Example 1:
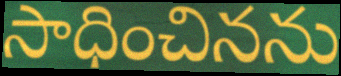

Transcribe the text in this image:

సాధించినను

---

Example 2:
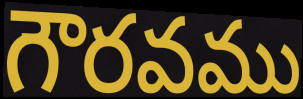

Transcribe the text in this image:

గౌరవము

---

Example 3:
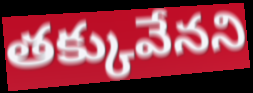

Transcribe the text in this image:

తక్కువేనని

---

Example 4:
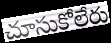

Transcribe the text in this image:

చూసుకోలేరు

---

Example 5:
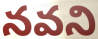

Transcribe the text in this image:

నవని